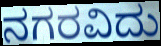
ನಗರವಿದು